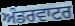
ਅੰਡਰਵਾਟਰ